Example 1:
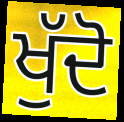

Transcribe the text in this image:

ਖੁੱਦੋ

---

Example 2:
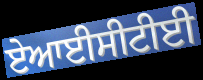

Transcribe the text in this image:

ਏਆਈਸੀਟੀਈ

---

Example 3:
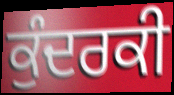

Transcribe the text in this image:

ਕੁੰਦਰਕੀ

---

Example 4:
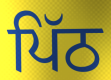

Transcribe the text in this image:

ਪਿੱਠ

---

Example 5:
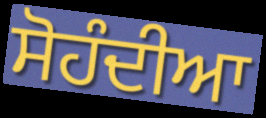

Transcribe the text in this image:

ਸੋਹੰਦੀਆ